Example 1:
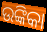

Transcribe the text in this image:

ଉଙ୍କିକା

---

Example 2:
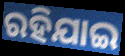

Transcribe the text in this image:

ରହିଯାଇ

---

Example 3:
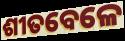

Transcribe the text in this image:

ଶୀତବେଳେ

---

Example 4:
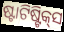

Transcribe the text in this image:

ଷ୍ଟାଟିଷ୍ଟିକ୍‍ସ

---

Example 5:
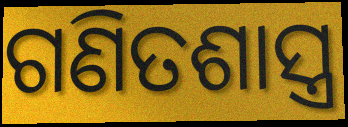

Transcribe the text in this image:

ଗଣିତଶାସ୍ତ୍ର